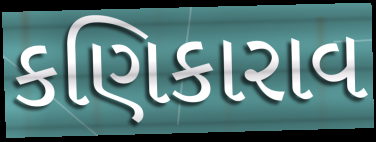
કણિકારાવ